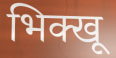
भिक्खू